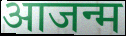
आजन्म